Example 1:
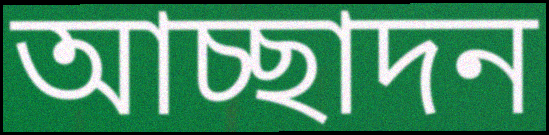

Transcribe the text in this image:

আচ্ছাদন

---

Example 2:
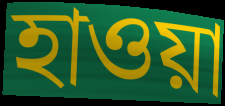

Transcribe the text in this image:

হাওয়া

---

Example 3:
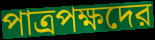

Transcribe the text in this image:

পাত্রপক্ষদের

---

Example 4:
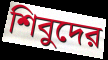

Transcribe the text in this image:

শিবুদের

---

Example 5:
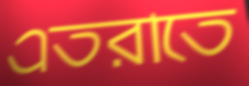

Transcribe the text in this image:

এতরাতে